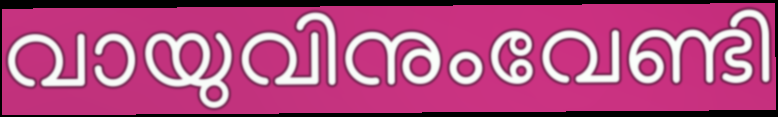
വായുവിനുംവേണ്ടി